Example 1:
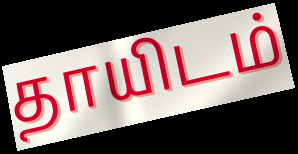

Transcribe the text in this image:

தாயிடம்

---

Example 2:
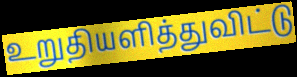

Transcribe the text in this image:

உறுதியளித்துவிட்டு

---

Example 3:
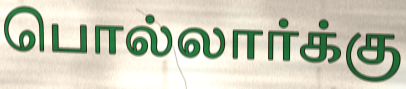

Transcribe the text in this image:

பொல்லார்க்கு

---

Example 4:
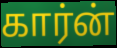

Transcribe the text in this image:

கார்ன்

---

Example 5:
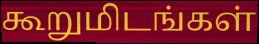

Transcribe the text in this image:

கூறுமிடங்கள்